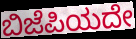
ಬಿಜೆಪಿಯದೇ